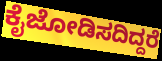
ಕೈಜೋಡಿಸದಿದ್ದರೆ